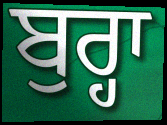
ਬੁਰ੍ਹਾ